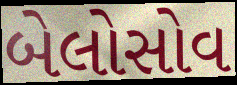
બેલોસોવ